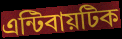
এন্টিবায়টিক